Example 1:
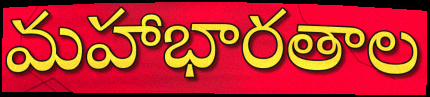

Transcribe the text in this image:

మహాభారతాల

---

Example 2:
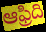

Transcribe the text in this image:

ఆఫ్రిది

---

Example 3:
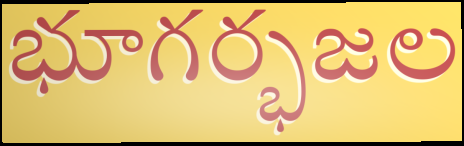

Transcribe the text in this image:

భూగర్భజల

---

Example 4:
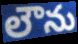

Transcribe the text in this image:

లౌను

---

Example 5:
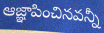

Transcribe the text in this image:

ఆజ్ఞాపించినవన్నీ